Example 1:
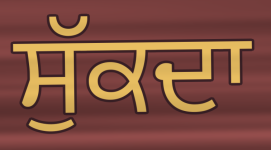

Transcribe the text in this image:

ਸੁੱਕਦਾ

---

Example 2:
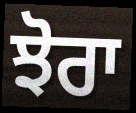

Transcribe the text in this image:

ਝੋਰਾ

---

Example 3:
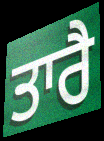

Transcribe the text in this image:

ਤਾਰੈ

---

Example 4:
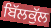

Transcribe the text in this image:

ਬਿੱਲਕੁੱਲ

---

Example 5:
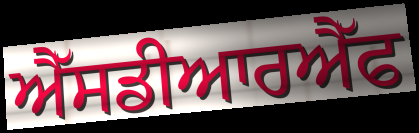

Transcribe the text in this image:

ਐੱਸਡੀਆਰਐੱਫ